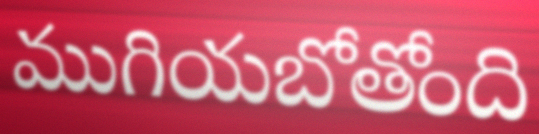
ముగియబోతోంది